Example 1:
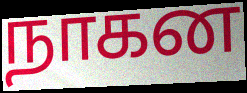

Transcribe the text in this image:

நாகன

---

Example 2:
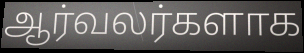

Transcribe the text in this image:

ஆர்வலர்களாக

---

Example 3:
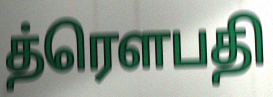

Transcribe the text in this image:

த்ரௌபதி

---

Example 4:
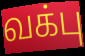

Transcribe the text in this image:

வக்பு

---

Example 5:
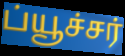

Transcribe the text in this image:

ப்யூச்சர்